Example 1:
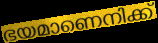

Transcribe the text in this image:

ഭയമാണെനിക്ക്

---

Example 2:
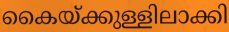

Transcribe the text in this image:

കൈയ്ക്കുള്ളിലാക്കി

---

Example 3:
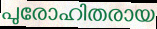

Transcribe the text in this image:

പുരോഹിതരായ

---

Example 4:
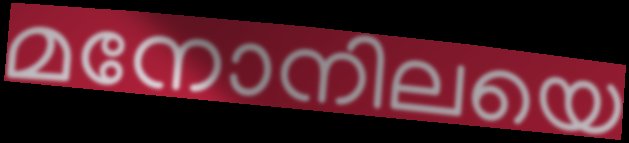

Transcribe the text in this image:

മനോനിലയെ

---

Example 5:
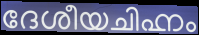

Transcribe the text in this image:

ദേശീയചിഹ്നം